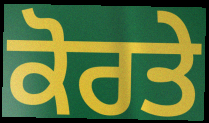
ਕੋਰਤੇ